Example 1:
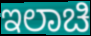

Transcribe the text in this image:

ಇಲಾಚಿ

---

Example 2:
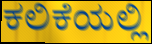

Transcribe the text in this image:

ಕಲಿಕೆಯಲ್ಲಿ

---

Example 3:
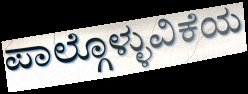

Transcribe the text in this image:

ಪಾಲ್ಗೊಳ್ಳುವಿಕೆಯ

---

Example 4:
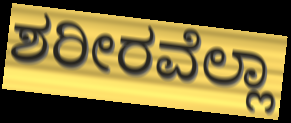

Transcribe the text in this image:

ಶರೀರವೆಲ್ಲಾ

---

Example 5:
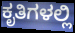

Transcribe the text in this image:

ಕೃತಿಗಳಲ್ಲಿ